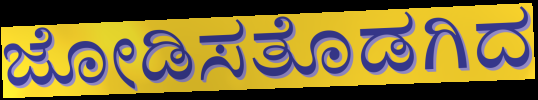
ಜೋಡಿಸತೊಡಗಿದ